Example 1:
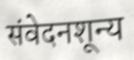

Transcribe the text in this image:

संवेदनशून्य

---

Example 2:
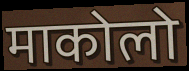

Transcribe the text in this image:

माकोलो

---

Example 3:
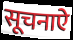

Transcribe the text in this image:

सूचनाऐ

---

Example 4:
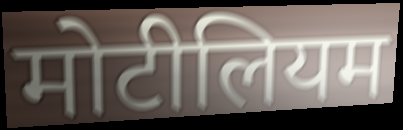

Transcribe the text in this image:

मोटीलियम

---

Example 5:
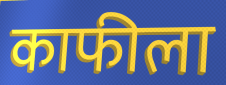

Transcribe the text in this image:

काफीला